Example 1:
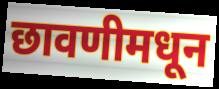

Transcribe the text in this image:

छावणीमधून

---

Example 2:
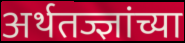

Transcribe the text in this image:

अर्थतज्ज्ञांच्या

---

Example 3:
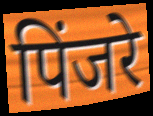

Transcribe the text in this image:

पिंजरे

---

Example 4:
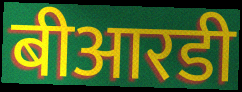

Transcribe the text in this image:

बीआरडी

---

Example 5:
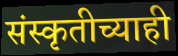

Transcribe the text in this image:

संस्कृतीच्याही